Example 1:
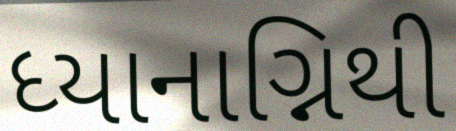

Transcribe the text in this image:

ધ્યાનાગ્નિથી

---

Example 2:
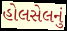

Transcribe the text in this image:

હોલસેલનું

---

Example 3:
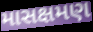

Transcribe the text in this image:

માસક્ષમણ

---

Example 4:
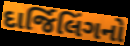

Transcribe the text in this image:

દાર્જિલિંગનો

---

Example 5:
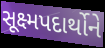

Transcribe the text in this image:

સૂક્ષ્મપદાર્થોને